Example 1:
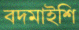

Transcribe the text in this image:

বদমাইশি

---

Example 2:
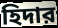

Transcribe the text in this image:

হিদার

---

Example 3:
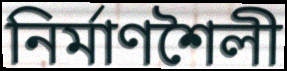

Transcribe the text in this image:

নির্মাণশৈলী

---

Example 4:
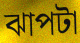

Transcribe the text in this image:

ঝাপটা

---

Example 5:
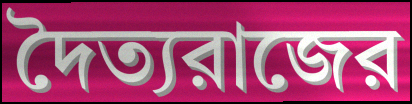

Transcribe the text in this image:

দৈত্যরাজের